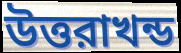
উত্তরাখন্ড